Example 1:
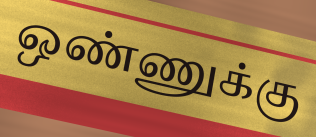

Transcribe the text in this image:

ஒண்ணுக்கு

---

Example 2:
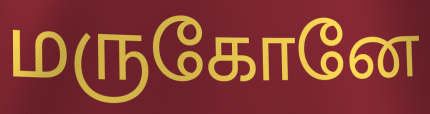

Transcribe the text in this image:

மருகோனே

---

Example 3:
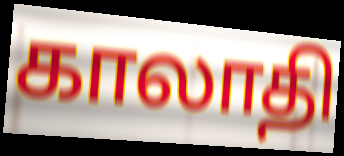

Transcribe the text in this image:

காலாதி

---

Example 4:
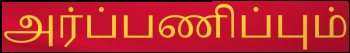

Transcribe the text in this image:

அர்ப்பணிப்பும்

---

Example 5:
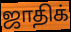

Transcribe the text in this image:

ஜாதிக்